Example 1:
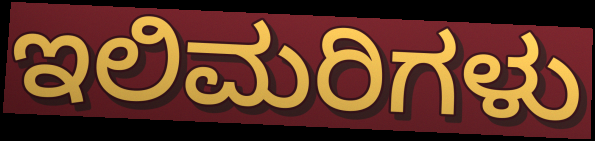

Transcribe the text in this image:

ಇಲಿಮರಿಗಳು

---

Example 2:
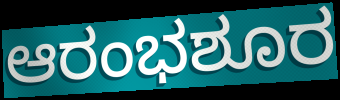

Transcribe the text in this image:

ಆರಂಭಶೂರ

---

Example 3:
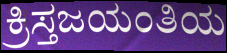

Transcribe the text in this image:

ಕ್ರಿಸ್ತಜಯಂತಿಯ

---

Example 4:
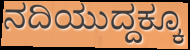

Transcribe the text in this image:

ನದಿಯುದ್ದಕ್ಕೂ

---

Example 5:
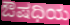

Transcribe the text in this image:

ಔಷಧಿಯ